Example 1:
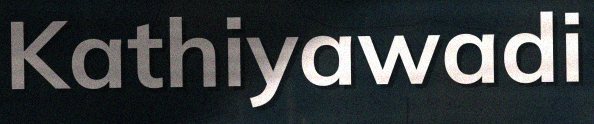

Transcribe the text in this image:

Kathiyawadi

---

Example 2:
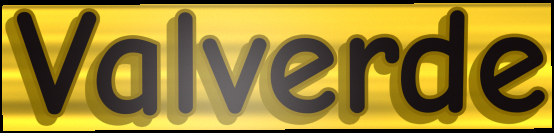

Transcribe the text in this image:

Valverde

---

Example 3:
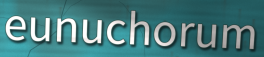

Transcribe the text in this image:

eunuchorum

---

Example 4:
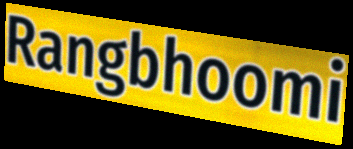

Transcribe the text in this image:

Rangbhoomi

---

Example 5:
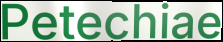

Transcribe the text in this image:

Petechiae